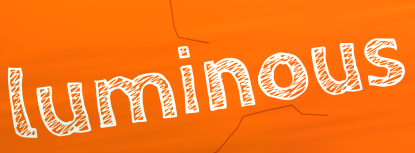
luminous